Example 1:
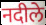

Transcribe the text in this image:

नदीले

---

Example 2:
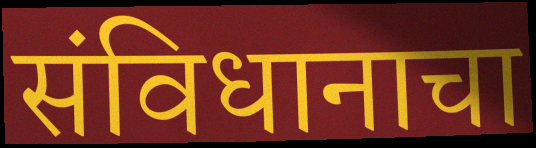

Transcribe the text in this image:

संविधानाचा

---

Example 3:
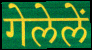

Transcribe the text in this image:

गेलेलें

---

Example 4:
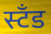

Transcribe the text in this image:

स्टँड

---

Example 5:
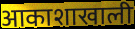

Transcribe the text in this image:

आकाशाखाली